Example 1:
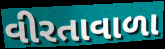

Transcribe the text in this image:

વીરતાવાળા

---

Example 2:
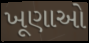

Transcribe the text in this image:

ખૂણાઓ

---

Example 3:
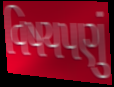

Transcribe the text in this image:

વિષયપણું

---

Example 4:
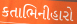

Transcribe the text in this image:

કતાભિનીહારો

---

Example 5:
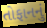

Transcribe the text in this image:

તોફાનનું